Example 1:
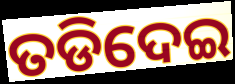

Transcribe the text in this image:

ତଡିଦେଇ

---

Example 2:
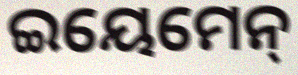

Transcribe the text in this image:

ଇୟେମେନ୍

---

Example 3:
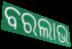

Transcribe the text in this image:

ବରଲାଭ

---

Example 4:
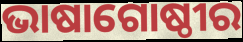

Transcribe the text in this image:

ଭାଷାଗୋଷ୍ଠୀର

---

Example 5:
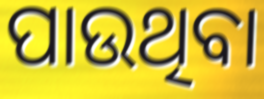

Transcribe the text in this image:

ପାଉଥିବା